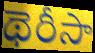
థెరీసా